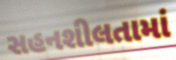
સહનશીલતામાં